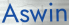
Aswin